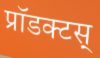
प्रॉडक्टस्